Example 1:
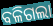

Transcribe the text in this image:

ବଳିଗଲା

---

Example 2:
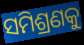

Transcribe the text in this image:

ସମିଶ୍ରଣକୁ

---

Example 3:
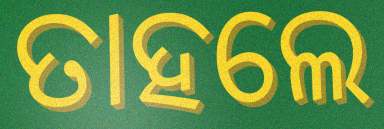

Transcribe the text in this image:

ତାହଲେ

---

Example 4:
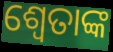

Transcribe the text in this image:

ଶ୍ୱେତାଙ୍କ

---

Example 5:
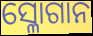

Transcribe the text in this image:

ସ୍ଳୋଗାନ